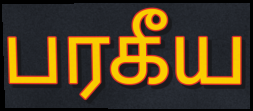
பரகீய